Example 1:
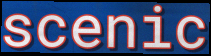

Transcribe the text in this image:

scenic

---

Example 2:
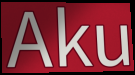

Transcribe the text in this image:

Aku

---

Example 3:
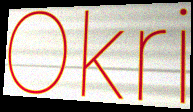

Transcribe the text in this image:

Okri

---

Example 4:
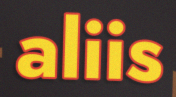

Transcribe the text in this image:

aliis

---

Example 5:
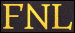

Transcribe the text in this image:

FNL